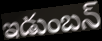
ఇడుంబన్